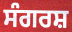
ਸੰਗਰਸ਼